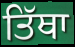
ਤਿੱਥਾ